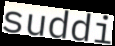
suddi